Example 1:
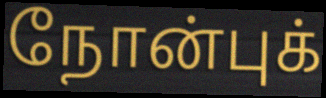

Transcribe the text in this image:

நோன்புக்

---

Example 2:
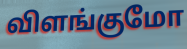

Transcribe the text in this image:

விளங்குமோ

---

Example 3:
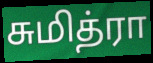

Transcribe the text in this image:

சுமித்ரா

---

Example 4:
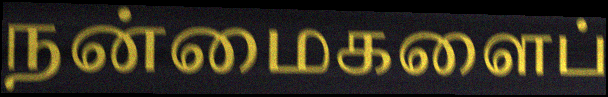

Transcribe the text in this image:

நன்மைகளைப்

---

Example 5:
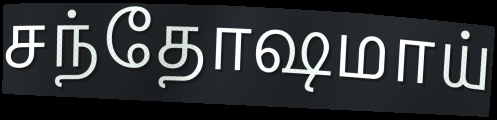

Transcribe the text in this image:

சந்தோஷமாய்